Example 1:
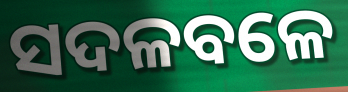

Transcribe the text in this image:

ସଦଳବଳେ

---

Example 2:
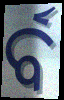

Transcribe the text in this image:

ର୍ବ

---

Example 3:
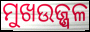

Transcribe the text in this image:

ମୁଖଉଜ୍ଜ୍ୱଳ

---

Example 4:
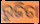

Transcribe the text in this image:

ରୁଜିତା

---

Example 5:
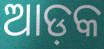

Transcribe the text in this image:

ଆଡ଼କ